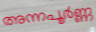
അന്നപൂർണ്ണ